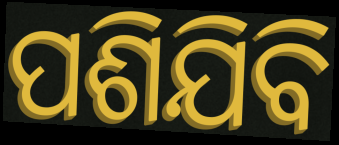
ପଶିଯିବି